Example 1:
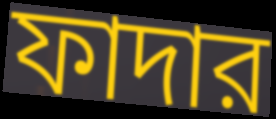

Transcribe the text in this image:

ফাদার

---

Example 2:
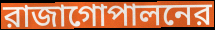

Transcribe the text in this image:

রাজাগোপালনের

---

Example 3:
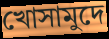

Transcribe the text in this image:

খোসামুদে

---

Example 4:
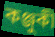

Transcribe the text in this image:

কঞ্জুকী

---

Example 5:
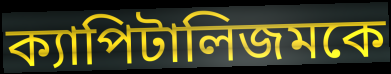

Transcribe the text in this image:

ক্যাপিটালিজমকে